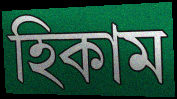
হিকাম